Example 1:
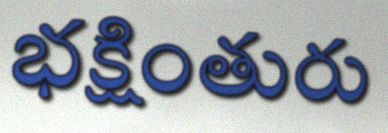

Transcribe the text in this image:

భక్షింతురు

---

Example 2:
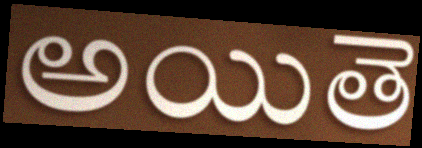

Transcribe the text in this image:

అయితె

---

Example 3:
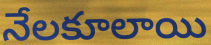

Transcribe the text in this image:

నేలకూలాయి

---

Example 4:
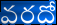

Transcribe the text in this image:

వరదో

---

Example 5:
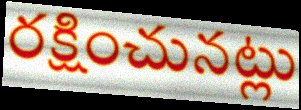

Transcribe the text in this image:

రక్షించునట్లు